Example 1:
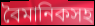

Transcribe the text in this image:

বৈমানিকসহ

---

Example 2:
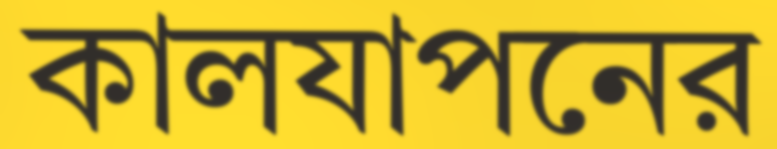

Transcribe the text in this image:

কালযাপনের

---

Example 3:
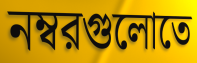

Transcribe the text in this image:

নম্বরগুলোতে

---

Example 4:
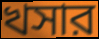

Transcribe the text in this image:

খসার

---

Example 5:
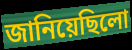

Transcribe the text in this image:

জানিয়েছিলো